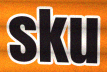
sku